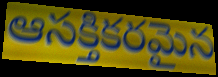
ఆసక్తికరమైన